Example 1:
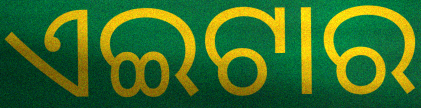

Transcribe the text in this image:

ଏଇଟାର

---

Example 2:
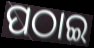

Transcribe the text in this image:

ପଠାଇ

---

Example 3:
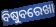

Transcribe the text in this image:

ବିଷୁବରେଖା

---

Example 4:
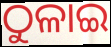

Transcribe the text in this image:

ଠୁଳାଇ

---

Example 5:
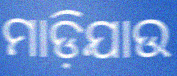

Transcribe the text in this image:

ମାଡ଼ିଯାଉ